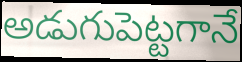
అడుగుపెట్టగానే